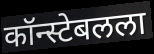
कॉन्स्टेबलला